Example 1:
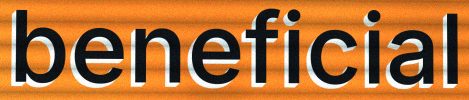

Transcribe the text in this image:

beneficial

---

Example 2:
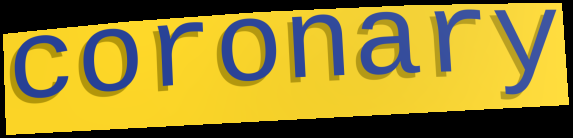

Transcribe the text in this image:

coronary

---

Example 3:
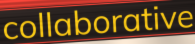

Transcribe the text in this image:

collaborative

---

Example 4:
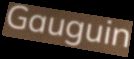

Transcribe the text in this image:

Gauguin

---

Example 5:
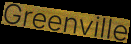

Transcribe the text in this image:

Greenville